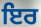
ਇਰ